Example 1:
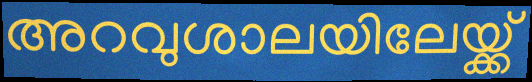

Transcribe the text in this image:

അറവുശാലയിലേയ്ക്ക്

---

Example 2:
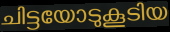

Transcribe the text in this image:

ചിട്ടയോടുകൂടിയ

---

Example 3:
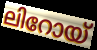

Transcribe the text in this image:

ലിറോയ്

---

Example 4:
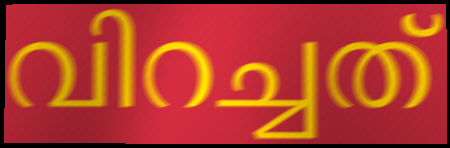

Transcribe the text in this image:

വിറച്ചത്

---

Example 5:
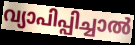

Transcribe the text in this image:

വ്യാപിപ്പിച്ചാൽ